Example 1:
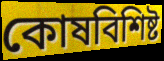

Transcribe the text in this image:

কোষবিশিষ্ট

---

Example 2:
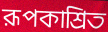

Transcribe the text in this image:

রূপকাশ্রিত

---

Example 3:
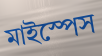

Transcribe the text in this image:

মাইস্পেস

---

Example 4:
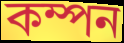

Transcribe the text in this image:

কম্পন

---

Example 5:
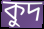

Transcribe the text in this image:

কুদ